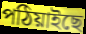
পঠিয়াইছে